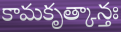
కామకృత్కాన్తః